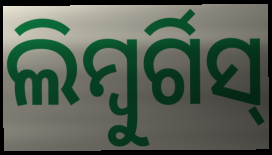
ଲିମ୍ବୁର୍ଗିସ୍